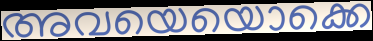
അവയെയൊക്കെ